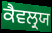
ਕੈਵਲ੍ਰਯ